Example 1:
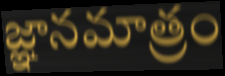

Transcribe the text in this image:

జ్ఞానమాత్రం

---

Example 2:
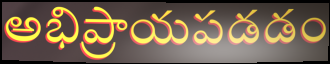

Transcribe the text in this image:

అభిప్రాయపడడం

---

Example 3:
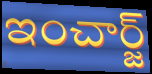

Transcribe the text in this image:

ఇంచార్జ్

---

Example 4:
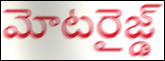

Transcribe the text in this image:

మోటరైజ్డ్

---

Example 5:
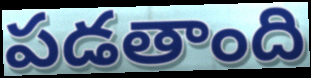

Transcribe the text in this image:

పడతాంది